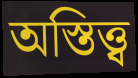
অস্তিত্ত্ব